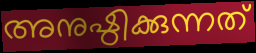
അനുഷ്ഠിക്കുന്നത്